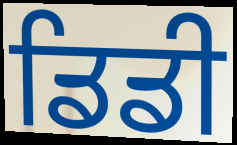
ਡਿਡੀ